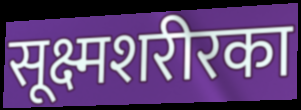
सूक्ष्मशरीरका